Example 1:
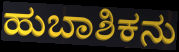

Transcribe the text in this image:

ಹುಬಾಶಿಕನು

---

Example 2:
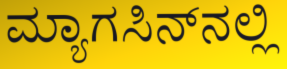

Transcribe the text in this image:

ಮ್ಯಾಗಸಿನ್‍ನಲ್ಲಿ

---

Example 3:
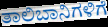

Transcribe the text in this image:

ತಾಲಿಬಾನಿಗಳಿಗೆ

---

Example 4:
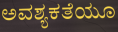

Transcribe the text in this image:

ಅವಶ್ಯಕತೆಯೂ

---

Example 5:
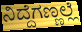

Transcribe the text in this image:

ನಿದ್ದೆಗಣ್ಣಲ್ಲೆ